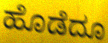
ಹೊಡೆದೂ